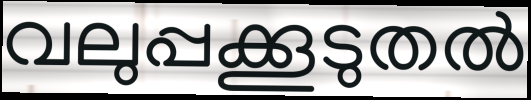
വലുപ്പക്കൂടുതൽ